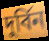
দুর্বিন